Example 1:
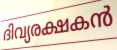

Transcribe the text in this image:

ദിവ്യരക്ഷകൻ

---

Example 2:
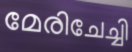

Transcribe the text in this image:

മേരിചേച്ചി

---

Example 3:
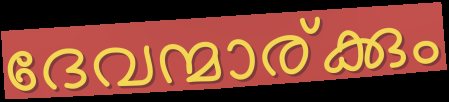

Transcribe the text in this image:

ദേവന്മാര്ക്കും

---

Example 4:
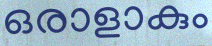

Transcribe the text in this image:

ഒരാളാകും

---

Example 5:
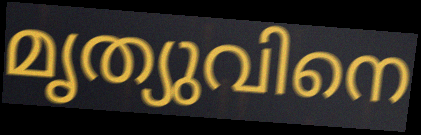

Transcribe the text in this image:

മൃത്യുവിനെ